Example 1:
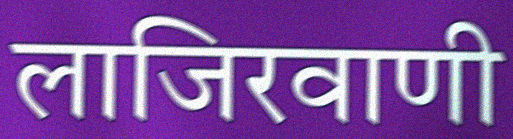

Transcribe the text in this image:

लाजिरवाणी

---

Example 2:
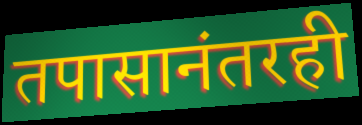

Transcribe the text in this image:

तपासानंतरही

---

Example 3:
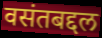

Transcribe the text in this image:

वसंतबद्दल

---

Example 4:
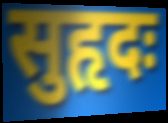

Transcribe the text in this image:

सुहृदः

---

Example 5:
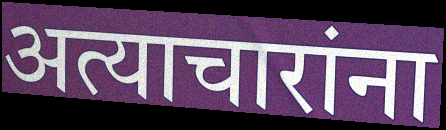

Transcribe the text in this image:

अत्याचारांना